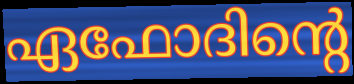
ഏഫോദിന്റെ